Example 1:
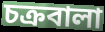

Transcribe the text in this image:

চক্রবালা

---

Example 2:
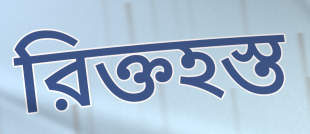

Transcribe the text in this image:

রিক্তহস্ত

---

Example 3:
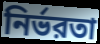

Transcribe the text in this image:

নির্ভরতা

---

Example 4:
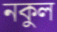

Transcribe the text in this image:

নকুল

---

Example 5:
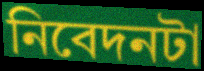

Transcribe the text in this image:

নিবেদনটা